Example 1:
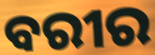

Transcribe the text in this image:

ବରୀର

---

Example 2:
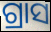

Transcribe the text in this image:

ଗ୍ରାସ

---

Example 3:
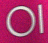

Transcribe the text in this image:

ଠା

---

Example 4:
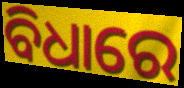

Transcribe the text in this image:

ବିଧାରେ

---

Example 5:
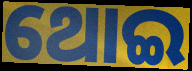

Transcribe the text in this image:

ଥୋଇ